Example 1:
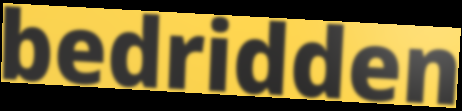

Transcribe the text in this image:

bedridden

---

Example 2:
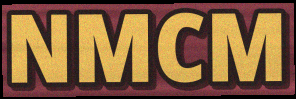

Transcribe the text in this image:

NMCM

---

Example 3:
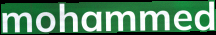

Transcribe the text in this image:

mohammed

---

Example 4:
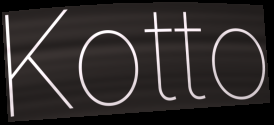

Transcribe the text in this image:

Kotto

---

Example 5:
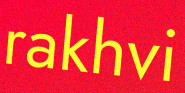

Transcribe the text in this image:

rakhvi